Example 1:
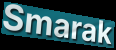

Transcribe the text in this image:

Smarak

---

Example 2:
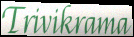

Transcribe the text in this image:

Trivikrama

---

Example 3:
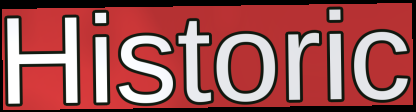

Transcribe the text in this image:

Historic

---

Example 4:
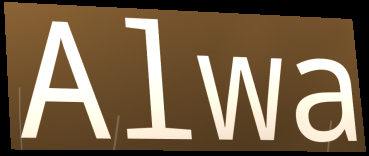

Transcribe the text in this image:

Alwa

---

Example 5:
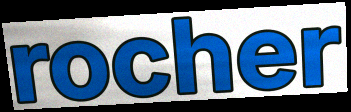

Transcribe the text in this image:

rocher